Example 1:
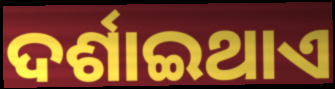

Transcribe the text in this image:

ଦର୍ଶାଇଥାଏ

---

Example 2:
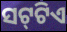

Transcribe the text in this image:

ସଟ୍‍ଟିଏ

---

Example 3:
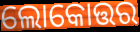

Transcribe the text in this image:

ଲୋକୋତ୍ତର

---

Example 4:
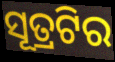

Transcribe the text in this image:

ସୂତ୍ରଟିର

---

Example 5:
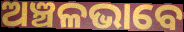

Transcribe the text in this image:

ଅଞ୍ଚଳଭାବେ